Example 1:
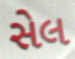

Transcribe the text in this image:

સેલ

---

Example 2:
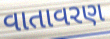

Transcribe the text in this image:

વાતાવરણ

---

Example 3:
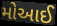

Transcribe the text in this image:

મોઆઈ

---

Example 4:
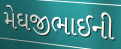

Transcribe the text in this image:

મેઘજીભાઈની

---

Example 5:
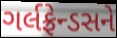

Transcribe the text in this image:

ગર્લફ્રેન્ડસને